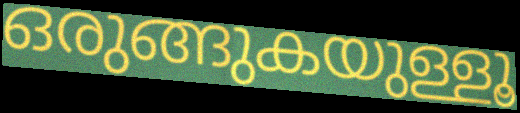
ഒരുങ്ങുകയുള്ളൂ